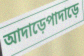
আদাড়েপাদাড়ে